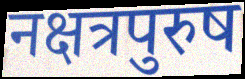
नक्षत्रपुरुष